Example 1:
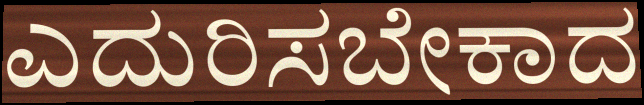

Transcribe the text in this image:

ಎದುರಿಸಬೇಕಾದ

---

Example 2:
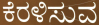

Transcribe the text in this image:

ಕೆರಳಿಸುವ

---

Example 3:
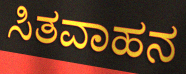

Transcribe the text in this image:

ಸಿತವಾಹನ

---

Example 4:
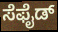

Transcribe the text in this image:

ಸೆಫೈಡ್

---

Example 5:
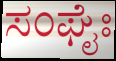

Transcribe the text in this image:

ಸಂಘೈಃ